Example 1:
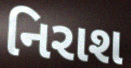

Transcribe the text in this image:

નિરાશ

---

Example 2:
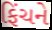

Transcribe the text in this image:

ફિંચને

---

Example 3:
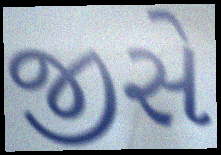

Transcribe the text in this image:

જીસે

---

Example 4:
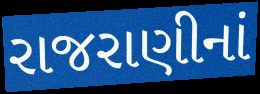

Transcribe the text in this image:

રાજરાણીનાં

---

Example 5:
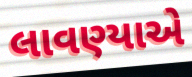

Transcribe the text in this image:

લાવણ્યાએ